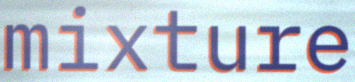
mixture